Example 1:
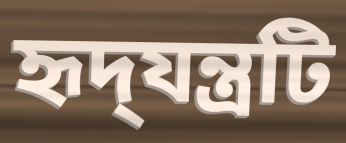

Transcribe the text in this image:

হৃদ্‌যন্ত্রটি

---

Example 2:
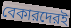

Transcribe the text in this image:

বেকারদেরই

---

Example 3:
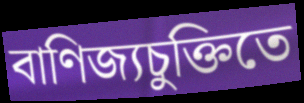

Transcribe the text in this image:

বাণিজ্যচুক্তিতে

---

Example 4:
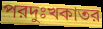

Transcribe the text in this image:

পরদুঃখকাতর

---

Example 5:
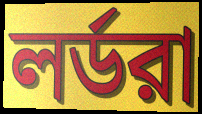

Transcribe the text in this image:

লর্ডরা